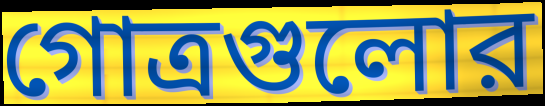
গোত্রগুলোর